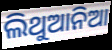
ଲିଥୁଆନିଆ